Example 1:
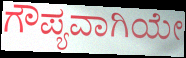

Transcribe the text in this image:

ಗೌಪ್ಯವಾಗಿಯೇ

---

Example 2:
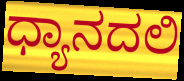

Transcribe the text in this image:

ಧ್ಯಾನದಲಿ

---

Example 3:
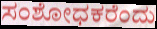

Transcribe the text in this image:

ಸಂಶೋಧಕರೆಂದು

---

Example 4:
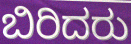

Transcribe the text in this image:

ಬಿರಿದರು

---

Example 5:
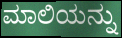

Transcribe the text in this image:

ಮಾಲಿಯನ್ನು